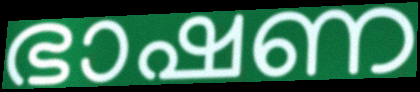
ഭാഷണ